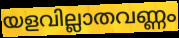
യളവില്ലാതവണ്ണം